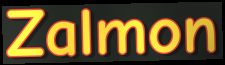
Zalmon